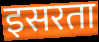
इसरता